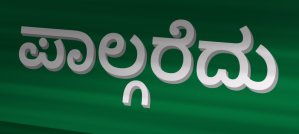
ಪಾಲ್ಗರೆದು